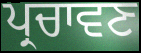
ਪ੍ਰਚਾਵਣ